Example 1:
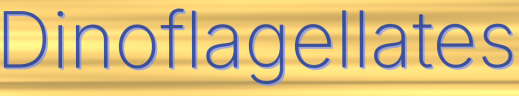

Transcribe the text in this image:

Dinoflagellates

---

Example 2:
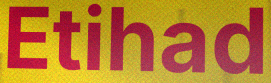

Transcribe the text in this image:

Etihad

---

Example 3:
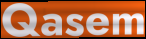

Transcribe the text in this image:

Qasem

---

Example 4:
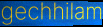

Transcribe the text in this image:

gechhilam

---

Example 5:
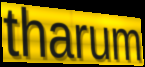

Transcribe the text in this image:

tharum